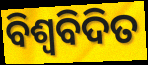
ବିଶ୍ବବିଦିତ